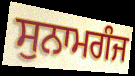
ਸੁਨਾਮਗੰਜ